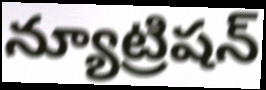
న్యూట్రిషన్